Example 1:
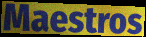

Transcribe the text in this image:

Maestros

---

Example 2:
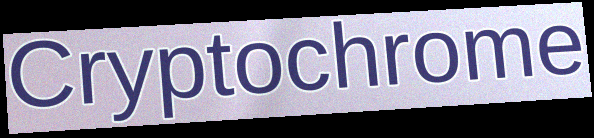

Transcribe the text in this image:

Cryptochrome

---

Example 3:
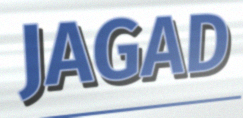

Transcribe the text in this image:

JAGAD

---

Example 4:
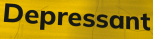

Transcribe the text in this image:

Depressant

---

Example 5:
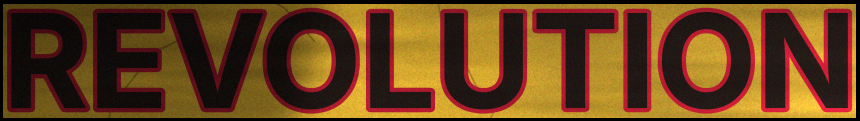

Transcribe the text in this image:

REVOLUTION